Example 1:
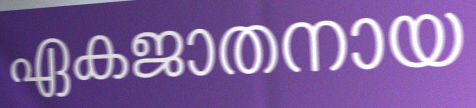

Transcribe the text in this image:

ഏകജാതനായ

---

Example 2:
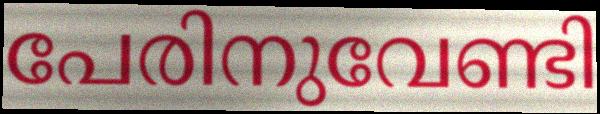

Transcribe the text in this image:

പേരിനുവേണ്ടി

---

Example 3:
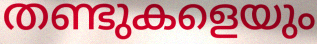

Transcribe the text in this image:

തണ്ടുകളെയും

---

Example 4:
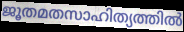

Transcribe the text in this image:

ജൂതമതസാഹിത്യത്തിൽ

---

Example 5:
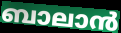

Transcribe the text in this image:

ബാലാൻ